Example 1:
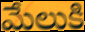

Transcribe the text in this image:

మేలుకి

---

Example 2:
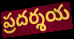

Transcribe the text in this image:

ప్రదర్శయ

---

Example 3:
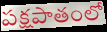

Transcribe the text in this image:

పక్షపాతంలో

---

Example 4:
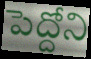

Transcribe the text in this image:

పెద్దోని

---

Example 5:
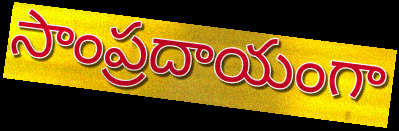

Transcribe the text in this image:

సాంప్రదాయంగా